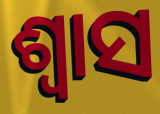
ଶ୍ୱାସ